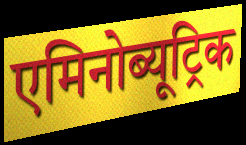
एमिनोब्यूट्रिक